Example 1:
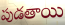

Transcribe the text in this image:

పుడతాయి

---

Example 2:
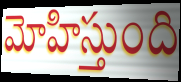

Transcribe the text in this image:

మోహిస్తుంది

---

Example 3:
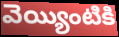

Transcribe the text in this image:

వెయ్యింటికి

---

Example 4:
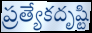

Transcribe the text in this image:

ప్రత్యేకదృష్టి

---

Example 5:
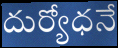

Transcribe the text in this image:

దుర్యోధనే